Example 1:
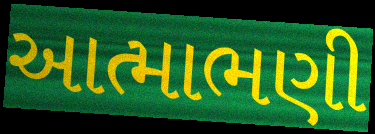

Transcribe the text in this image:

આત્માભણી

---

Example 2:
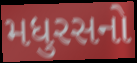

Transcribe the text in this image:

મધુરસનો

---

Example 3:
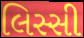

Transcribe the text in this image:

લિસ્સી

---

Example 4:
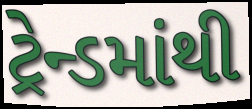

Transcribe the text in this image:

ટ્રેન્ડમાંથી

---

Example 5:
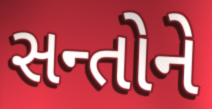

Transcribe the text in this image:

સન્તોને